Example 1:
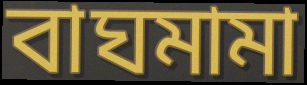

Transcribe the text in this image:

বাঘমামা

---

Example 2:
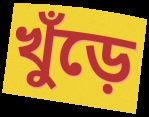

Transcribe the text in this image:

খুঁড়ে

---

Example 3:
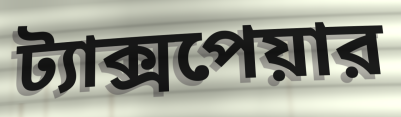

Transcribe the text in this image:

ট্যাক্সপেয়ার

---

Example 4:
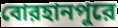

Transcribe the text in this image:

বোরহানপুরে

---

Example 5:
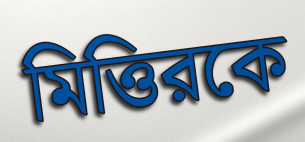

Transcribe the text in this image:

মিত্তিরকে